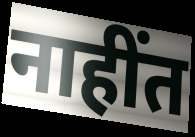
नाहींत